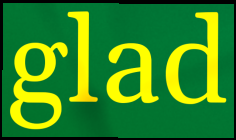
glad